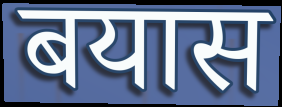
बयास